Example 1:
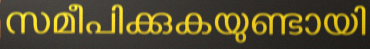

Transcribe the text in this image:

സമീപിക്കുകയുണ്ടായി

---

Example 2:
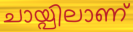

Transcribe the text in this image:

ചായ്പിലാണ്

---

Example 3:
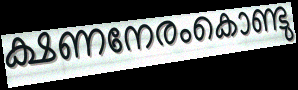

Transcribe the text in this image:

ക്ഷണനേരംകൊണ്ടു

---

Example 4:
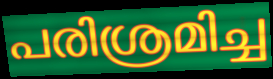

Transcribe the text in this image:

പരിശ്രമിച്ച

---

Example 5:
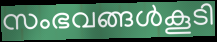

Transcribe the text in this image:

സംഭവങ്ങൾകൂടി